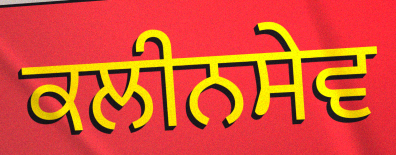
ਕਲੀਨਸੇਵ